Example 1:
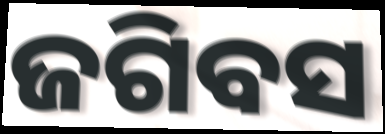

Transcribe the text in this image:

ଜଗିବସ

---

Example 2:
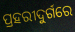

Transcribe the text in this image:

ପ୍ରହରୀଦୁର୍ଗରେ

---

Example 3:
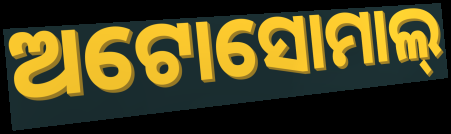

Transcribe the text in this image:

ଅଟୋସୋମାଲ୍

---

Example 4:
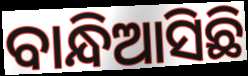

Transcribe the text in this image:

ବାନ୍ଧିଆସିଛି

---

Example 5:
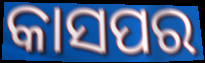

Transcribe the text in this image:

କାସପର